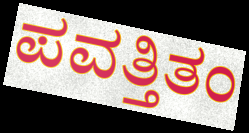
ಪವತ್ತಿತಂ